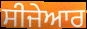
ਸੀਜੇਆਰ